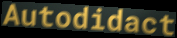
Autodidact